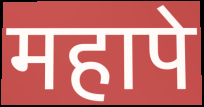
महापे